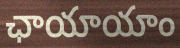
ఛాయాయాం